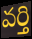
వర్తి